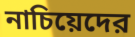
নাচিয়েদের